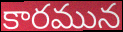
కారమున